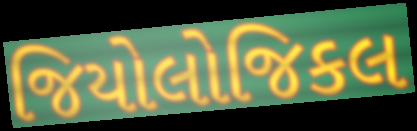
જિયોલોજિકલ